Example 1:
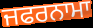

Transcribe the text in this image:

ਜਫਰਨਾਮਾ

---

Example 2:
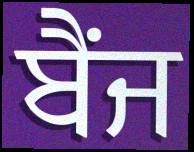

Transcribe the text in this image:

ਬੈਂਜ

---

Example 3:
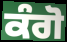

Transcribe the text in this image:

ਕੰਗੋ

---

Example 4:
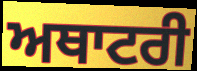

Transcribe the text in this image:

ਅਥਾਟਰੀ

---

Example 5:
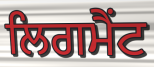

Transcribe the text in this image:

ਲਿਗਮੈਂਟ